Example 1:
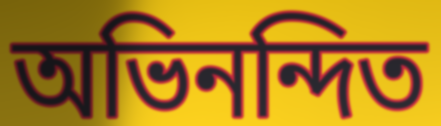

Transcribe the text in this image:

অভিনন্দিত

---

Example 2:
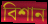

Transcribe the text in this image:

বিশান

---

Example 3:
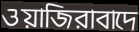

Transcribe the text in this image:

ওয়াজিরাবাদে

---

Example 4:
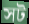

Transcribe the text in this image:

সট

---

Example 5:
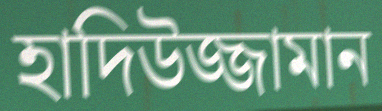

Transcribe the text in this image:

হাদিউজ্জামান